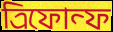
ত্রিফোন্ফ